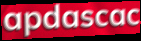
apdascac